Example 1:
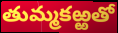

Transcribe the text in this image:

తుమ్మకఱ్ఱతో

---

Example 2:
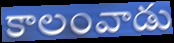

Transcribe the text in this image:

కాలంవాడు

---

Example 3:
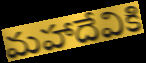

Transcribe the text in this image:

మహాదేవికి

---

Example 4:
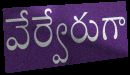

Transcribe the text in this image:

వేర్వేరుగా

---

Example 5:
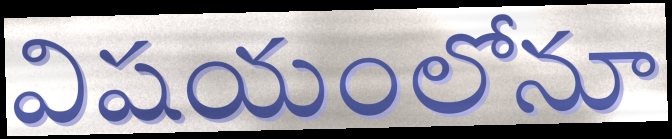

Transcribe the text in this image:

విషయంలోనూ